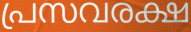
പ്രസവരക്ഷ